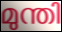
മുന്തി